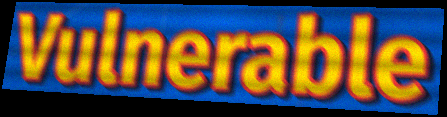
Vulnerable